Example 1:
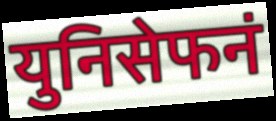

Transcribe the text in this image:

युनिसेफनं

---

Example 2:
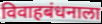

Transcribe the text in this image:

विवाहबंधनाला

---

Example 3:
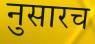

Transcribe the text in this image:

नुसारच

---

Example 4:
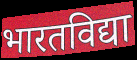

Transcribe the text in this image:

भारतविद्या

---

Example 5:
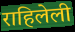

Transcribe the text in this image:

राहिलेली